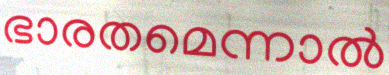
ഭാരതമെന്നാൽ